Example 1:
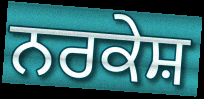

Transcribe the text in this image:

ਨਰਕੇਸ਼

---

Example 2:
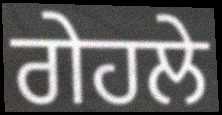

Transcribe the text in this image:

ਗੇਹਲੇ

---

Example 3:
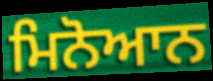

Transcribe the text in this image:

ਮਿਨੋਆਨ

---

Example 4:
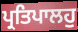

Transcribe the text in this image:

ਪ੍ਰਤਿਪਾਲਹੁ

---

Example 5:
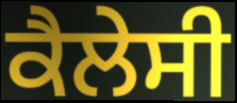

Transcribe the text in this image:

ਕੈਲੇਸੀ